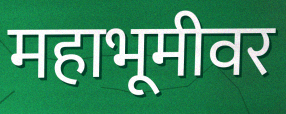
महाभूमीवर